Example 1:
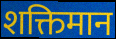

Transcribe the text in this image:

शक्तिमान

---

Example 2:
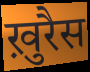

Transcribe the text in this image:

ख़ुरैस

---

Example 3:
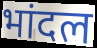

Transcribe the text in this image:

भांदल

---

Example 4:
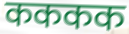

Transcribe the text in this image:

कककक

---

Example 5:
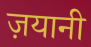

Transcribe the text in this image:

ज़यानी